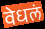
वेधलं